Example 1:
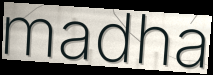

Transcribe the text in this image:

madha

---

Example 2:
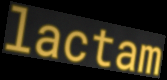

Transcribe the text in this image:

lactam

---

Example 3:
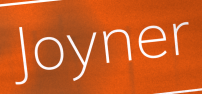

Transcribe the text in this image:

Joyner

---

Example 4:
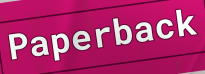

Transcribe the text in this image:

Paperback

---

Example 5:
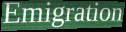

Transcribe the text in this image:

Emigration